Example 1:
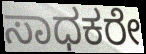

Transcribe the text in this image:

ಸಾಧಕರೇ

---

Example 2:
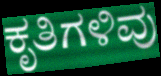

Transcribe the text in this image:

ಕೃತಿಗಳಿವು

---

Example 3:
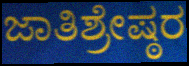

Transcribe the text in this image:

ಜಾತಿಶ್ರೇಷ್ಠರ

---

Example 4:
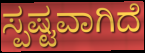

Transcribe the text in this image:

ಸ್ಪಷ್ಟವಾಗಿದೆ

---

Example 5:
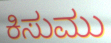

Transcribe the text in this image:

ಕಿಸುಮು